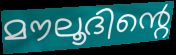
മൗലൂദിന്റെ